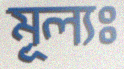
মূল্যঃ